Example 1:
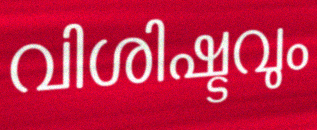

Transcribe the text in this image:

വിശിഷ്ടവും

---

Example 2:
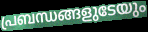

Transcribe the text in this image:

പ്രബന്ധങ്ങളുടേയും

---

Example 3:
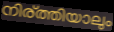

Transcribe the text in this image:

നിര്ത്തിയാലും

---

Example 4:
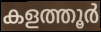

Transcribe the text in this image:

കളത്തൂർ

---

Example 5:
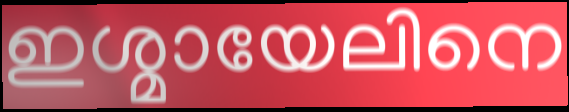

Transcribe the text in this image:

ഇശ്മായേലിനെ